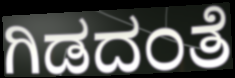
ಗಿಡದಂತೆ